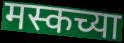
मस्कच्या